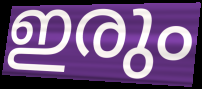
ഇരും